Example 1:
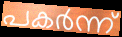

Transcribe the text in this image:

പകർന്ന്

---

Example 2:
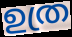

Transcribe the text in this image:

ഉത്ര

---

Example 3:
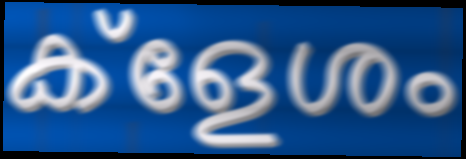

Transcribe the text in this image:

ക്ളേശം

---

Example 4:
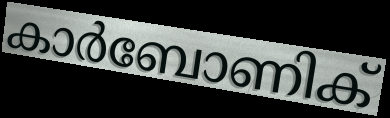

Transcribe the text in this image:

കാർബോണിക്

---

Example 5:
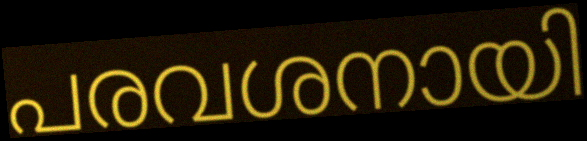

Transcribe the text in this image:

പരവശനായി